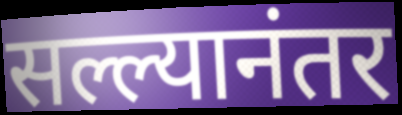
सल्ल्यानंतर